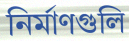
নির্মাণগুলি